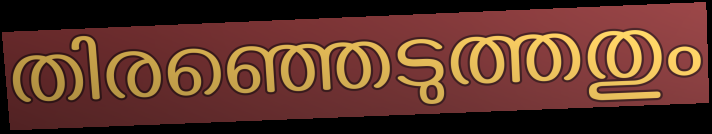
തിരഞ്ഞെടുത്തതും